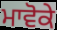
ਮਾਵੋਕੇ